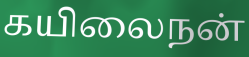
கயிலைநன்